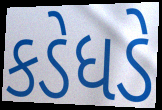
કડેધડે